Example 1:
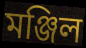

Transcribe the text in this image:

মঞ্জিল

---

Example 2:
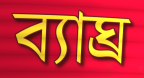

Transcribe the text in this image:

ব্যাঘ্ৰ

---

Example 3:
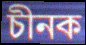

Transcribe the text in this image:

চীনক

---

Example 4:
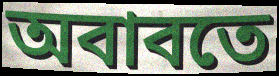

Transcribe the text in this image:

অবাবতে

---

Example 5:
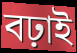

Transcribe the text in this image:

বঢ়াই